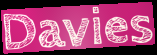
Davies